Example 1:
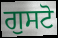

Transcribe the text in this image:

ਗੁਸਟੋ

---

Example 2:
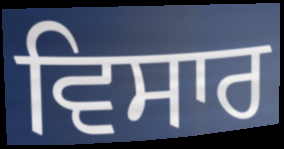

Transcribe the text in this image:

ਵਿਸਾਰ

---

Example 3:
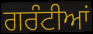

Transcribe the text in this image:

ਗਰੰਟੀਆਂ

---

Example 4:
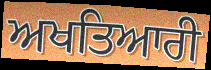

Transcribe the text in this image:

ਅਖਤਿਆਰੀ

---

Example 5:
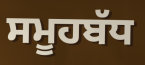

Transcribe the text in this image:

ਸਮੂਹਬੱਧ